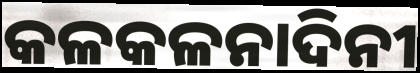
କଳକଳନାଦିନୀ